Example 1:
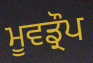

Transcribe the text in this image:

ਮੂਵਡ੍ਰੌਪ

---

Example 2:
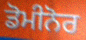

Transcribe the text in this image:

ਡੋਮੀਨੋਰ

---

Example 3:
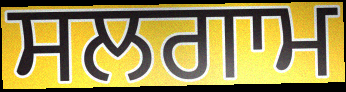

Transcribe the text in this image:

ਸਲਗਾਮ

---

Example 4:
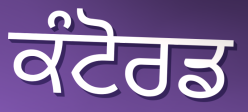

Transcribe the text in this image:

ਕੰਟੋਰਡ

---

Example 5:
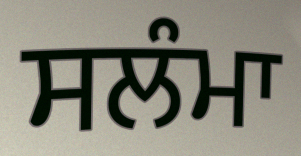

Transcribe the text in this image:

ਸਲੰਮਾ